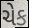
ચેક